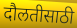
दौलतीसाठी